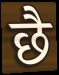
छै